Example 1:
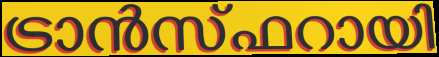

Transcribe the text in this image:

ട്രാൻസ്ഫറായി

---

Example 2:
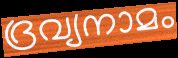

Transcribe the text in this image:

ദ്രവ്യനാമം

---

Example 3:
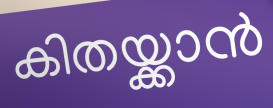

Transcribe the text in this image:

കിതയ്ക്കാൻ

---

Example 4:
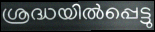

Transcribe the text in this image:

ശ്രദ്ധയിൽപ്പെട്ടു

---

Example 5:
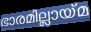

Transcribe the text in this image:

ഭാരമില്ലായ്മ